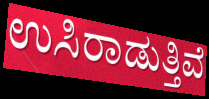
ಉಸಿರಾಡುತ್ತಿವೆ